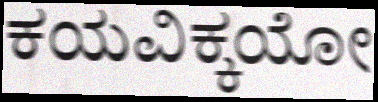
ಕಯವಿಕ್ಕಯೋ